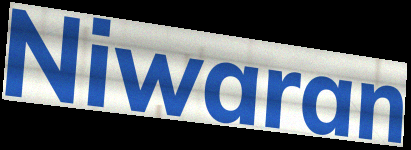
Niwaran